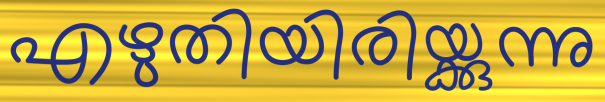
എഴുതിയിരിയ്ക്കുന്നു